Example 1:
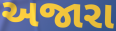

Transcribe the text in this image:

અજારા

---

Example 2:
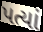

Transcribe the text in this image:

પત્યાં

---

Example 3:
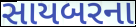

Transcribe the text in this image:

સાયબરના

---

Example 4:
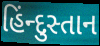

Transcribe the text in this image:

હિંન્દુસ્તાન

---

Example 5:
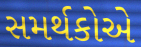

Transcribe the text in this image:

સમર્થકોએ